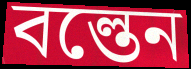
বল্তেন